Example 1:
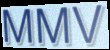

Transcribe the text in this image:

MMV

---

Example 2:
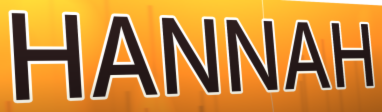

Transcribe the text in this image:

HANNAH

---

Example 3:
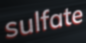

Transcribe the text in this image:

sulfate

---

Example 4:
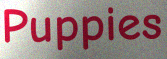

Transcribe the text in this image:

Puppies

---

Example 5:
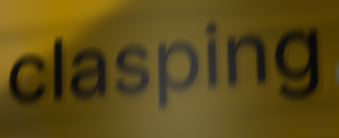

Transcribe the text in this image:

clasping